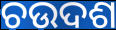
ଚଉଦଶ